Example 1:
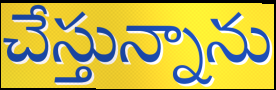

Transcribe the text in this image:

చేస్తున్నాను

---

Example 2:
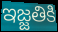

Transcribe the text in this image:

ఇజ్జతికి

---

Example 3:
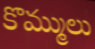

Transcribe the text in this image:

కొమ్ములు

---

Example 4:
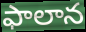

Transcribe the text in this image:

ఫాలాన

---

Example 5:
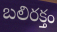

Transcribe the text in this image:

బలిరక్తం